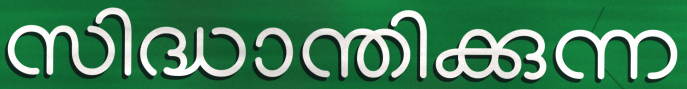
സിദ്ധാന്തിക്കുന്ന